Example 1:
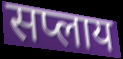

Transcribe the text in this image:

सप्लाय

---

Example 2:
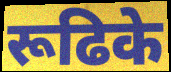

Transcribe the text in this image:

रूढिके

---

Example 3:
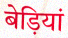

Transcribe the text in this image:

बेड़ियां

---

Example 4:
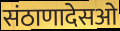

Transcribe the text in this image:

संठाणादेसओ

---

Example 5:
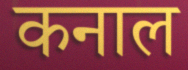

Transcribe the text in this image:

कनाल